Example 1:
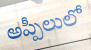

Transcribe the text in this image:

అప్పీలులో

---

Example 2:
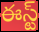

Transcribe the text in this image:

ఈస్ట్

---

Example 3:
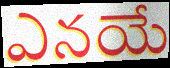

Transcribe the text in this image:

ఎనయే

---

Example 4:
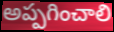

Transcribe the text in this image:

అప్పగించాలి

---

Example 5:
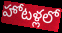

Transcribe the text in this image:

హోటళ్లలో